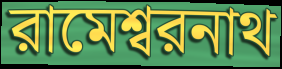
রামেশ্বরনাথ